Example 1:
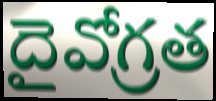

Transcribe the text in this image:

దైవోగ్రత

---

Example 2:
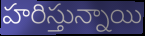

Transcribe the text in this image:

హరిస్తున్నాయి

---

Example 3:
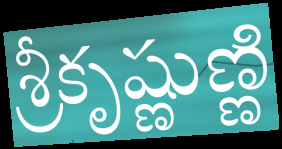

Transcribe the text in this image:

శ్రీకృష్ణుణ్ణి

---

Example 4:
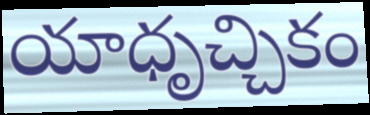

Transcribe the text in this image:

యాధృచ్చికం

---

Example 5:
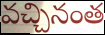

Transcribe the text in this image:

వచ్చినంత